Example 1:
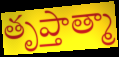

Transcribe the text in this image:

తృప్తాత్మా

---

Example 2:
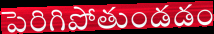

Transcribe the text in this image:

పెరిగిపోతుండడం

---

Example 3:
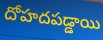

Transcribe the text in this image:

దోహదపడ్డాయి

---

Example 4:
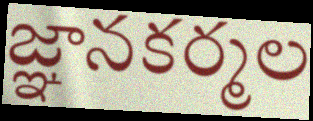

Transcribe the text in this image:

జ్ఞానకర్మల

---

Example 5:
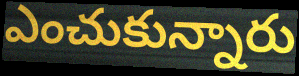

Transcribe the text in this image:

ఎంచుకున్నారు